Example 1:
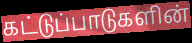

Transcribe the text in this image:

கட்டுப்பாடுகளின்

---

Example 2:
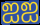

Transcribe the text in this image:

ஐஐ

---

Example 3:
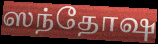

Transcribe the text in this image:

ஸந்தோஷ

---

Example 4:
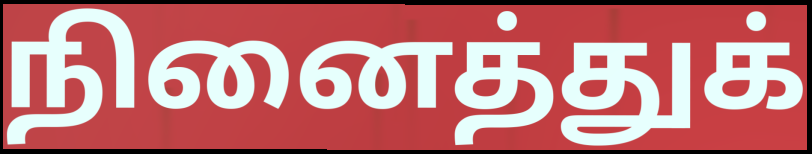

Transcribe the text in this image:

நினைத்துக்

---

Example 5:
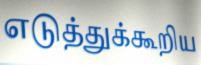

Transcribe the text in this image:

எடுத்துக்கூறிய